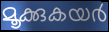
മൂക്കുകയർ